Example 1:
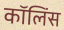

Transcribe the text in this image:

कॉलिंस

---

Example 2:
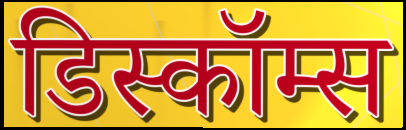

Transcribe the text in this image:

डिस्कॉम्स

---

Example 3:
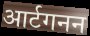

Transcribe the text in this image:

आर्टगनन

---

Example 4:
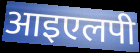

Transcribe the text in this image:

आइएलपी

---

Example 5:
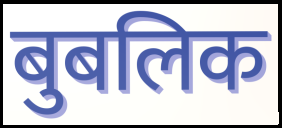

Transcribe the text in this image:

बुबलिक